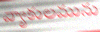
వ్యాకులమును